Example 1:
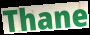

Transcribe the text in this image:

Thane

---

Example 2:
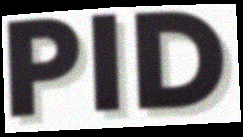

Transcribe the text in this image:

PID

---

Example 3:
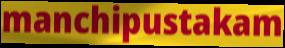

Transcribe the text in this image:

manchipustakam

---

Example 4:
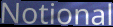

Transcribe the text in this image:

Notional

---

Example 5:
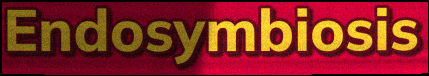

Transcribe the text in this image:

Endosymbiosis